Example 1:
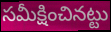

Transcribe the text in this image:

సమీక్షించినట్టు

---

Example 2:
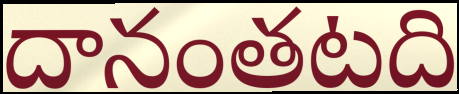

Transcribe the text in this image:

దానంతటది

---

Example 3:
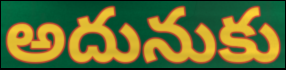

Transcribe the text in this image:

అదునుకు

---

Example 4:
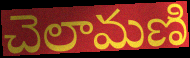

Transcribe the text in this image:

చెలామణి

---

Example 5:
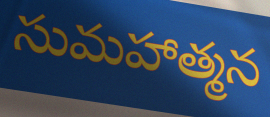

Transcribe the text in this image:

సుమహాత్మన